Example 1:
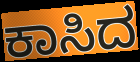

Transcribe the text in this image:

ಕಾಸಿದ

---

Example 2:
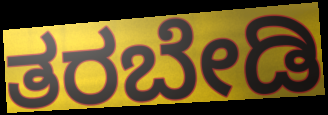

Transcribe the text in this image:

ತರಬೇಡಿ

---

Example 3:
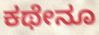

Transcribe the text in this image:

ಕಥೇನೂ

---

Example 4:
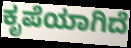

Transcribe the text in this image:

ಕೃಪೆಯಾಗಿದೆ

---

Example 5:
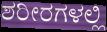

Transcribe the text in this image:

ಶರೀರಗಳಲ್ಲಿ